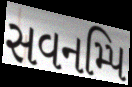
સવનમ્પિ